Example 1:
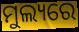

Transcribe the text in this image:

ମୁଲ୍ୟରେ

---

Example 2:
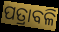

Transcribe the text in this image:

ପତ୍ରାବଳି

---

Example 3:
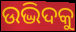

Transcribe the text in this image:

ଉଦ୍ଭିଦକୁ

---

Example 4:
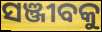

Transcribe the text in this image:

ସଞ୍ଜୀବକୁ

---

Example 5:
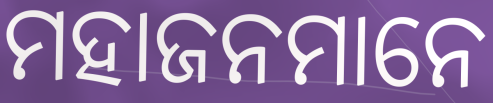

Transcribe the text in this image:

ମହାଜନମାନେ